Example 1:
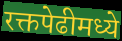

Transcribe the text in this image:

रक्तपेढीमध्ये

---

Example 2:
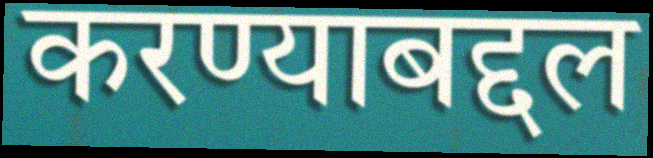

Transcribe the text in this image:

करण्याबद्दल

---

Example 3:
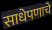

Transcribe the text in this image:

साधेपणाचे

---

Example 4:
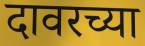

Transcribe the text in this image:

दावरच्या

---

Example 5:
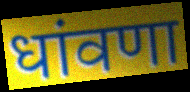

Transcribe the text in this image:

धांवणा